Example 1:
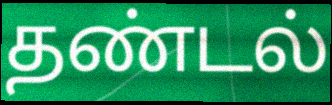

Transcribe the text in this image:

தண்டல்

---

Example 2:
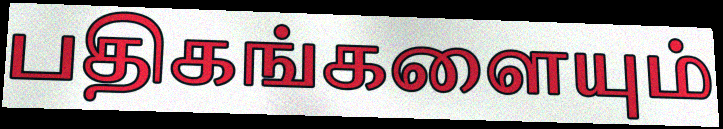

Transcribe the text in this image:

பதிகங்களையும்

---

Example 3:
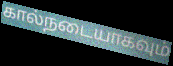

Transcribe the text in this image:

கால்நடையாகவும்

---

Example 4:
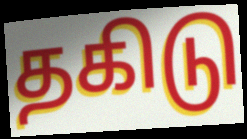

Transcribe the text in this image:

தகிடு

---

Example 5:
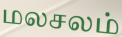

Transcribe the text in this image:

மலசலம்